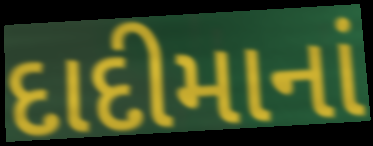
દાદીમાનાં